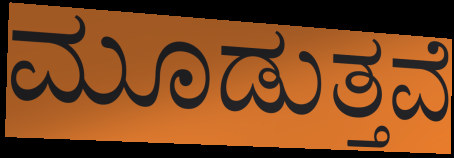
ಮೂಡುತ್ತವೆ